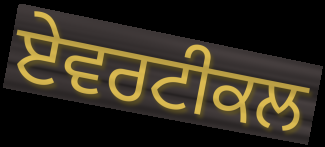
ਏਵਰਟੀਕਲ